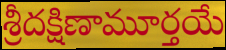
శ్రీదక్షిణామూర్తయే